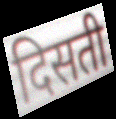
दिसती